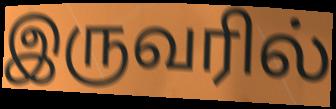
இருவரில்